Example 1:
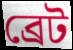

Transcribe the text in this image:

ব্রেট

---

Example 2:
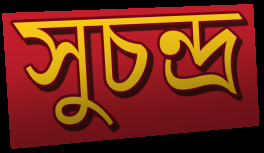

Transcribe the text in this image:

সুচন্দ্র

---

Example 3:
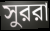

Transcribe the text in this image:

সুররা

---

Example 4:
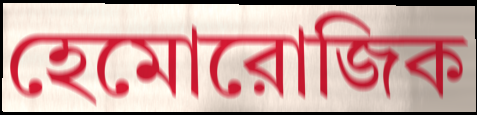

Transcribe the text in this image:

হেমোরোজিক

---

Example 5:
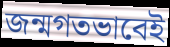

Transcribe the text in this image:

জন্মগতভাবেই